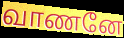
வாணனே